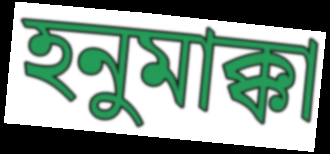
হনুমাক্কা